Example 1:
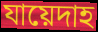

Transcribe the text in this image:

যায়েদাহ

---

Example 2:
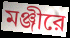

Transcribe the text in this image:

মঞ্জীরে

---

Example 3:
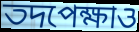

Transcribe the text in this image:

তদপেক্ষাও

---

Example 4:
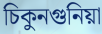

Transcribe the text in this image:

চিকুনগুনিয়া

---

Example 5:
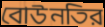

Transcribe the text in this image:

বোউনতির